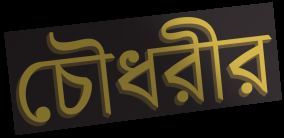
চৌধরীর